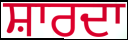
ਸ਼ਾਰਦਾ